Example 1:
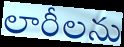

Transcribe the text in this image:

లారీలను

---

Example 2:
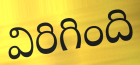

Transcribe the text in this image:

విరిగింది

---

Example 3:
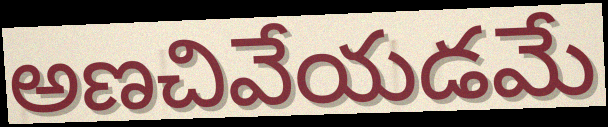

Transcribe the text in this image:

అణచివేయడమే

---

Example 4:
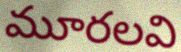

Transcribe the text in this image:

మూరలవి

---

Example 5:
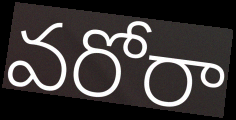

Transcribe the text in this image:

వరోరా